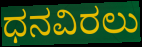
ಧನವಿರಲು